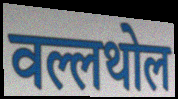
वल्लथोल